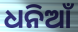
ଧନିଆଁ